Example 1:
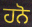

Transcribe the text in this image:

ਹਨੋ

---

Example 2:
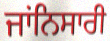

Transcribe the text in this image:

ਜਾਂਨਿਸਾਰੀ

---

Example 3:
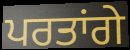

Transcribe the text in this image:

ਪਰਤਾਂਗੇ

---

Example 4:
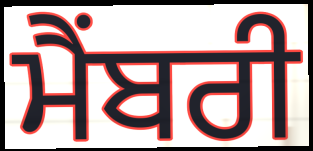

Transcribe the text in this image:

ਮੈਂਬਰੀ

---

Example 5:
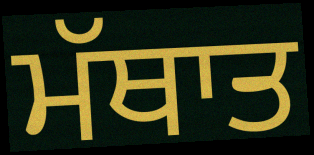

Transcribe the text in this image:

ਮੱਥਾਤ